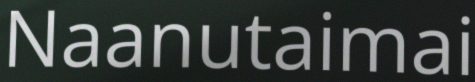
Naanutaimai